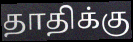
தாதிக்கு